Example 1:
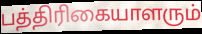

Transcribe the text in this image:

பத்திரிகையாளரும்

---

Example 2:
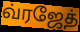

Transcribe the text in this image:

வ்ரஜேத்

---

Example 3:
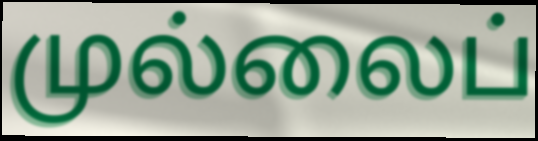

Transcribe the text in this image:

முல்லைப்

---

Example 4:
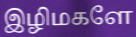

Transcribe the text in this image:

இழிமகளே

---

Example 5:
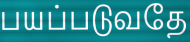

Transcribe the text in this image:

பயப்படுவதே